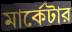
মার্কেটার